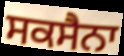
ਸਕਸੈਨਾ